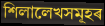
শিলালেখসমূহৰ